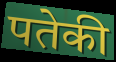
पतेकी